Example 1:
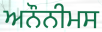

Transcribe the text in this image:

ਅਨੌਨੀਮਸ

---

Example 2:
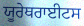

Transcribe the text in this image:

ਯੂਰੇਥਰਾਈਟਸ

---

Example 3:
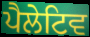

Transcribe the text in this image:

ਪੈਲੇਟਿਵ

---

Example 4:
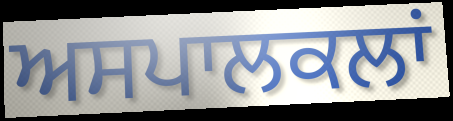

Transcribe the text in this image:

ਅਸਪਾਲਕਲਾਂ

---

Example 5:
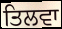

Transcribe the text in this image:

ਤਿਲਵਾ